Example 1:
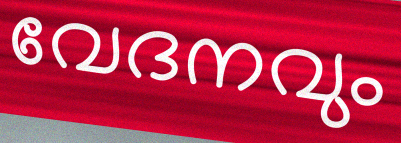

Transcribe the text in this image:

വേദനവും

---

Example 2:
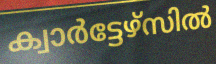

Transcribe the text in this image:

ക്വാർട്ടേഴ്സിൽ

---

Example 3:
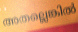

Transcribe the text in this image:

അതല്ലെങ്കിൽ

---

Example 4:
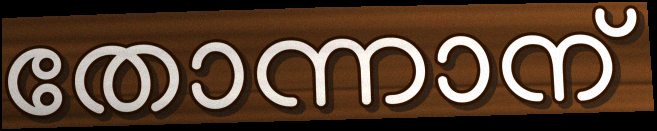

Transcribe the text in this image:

തോന്നാന്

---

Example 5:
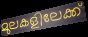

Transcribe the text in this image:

മുലകളിലേക്ക്